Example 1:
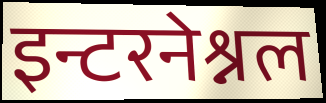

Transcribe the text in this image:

इन्टरनेश्नल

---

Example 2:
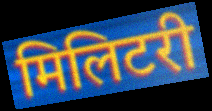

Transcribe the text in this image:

मिलिटरी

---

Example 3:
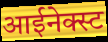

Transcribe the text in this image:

आईनेक्स्ट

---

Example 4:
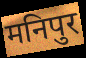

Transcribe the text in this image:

मनिपुर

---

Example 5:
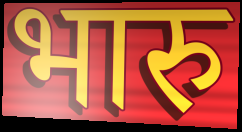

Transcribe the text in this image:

भारु